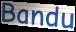
Bandu